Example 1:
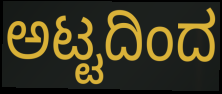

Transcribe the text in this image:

ಅಟ್ಟದಿಂದ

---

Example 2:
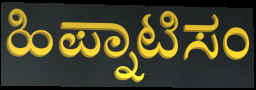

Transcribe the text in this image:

ಹಿಪ್ನಾಟಿಸಂ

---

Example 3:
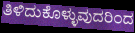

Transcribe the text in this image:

ತಿಳಿದುಕೊಳ್ಳುವುದರಿಂದ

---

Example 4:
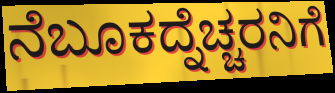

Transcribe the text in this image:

ನೆಬೂಕದ್ನೆಚ್ಚರನಿಗೆ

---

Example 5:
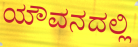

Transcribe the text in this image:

ಯೌವನದಲ್ಲಿ